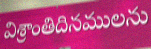
విశ్రాంతిదినములను